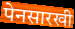
पेनसारखी